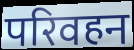
परिवहन